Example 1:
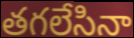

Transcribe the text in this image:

తగలేసినా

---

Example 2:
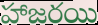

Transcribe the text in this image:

హాజరయి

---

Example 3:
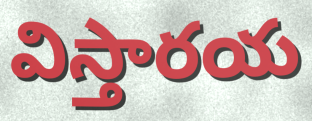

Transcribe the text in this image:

విస్తారయ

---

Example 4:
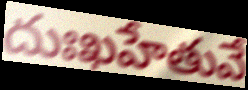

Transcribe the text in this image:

దుఃఖహేతువే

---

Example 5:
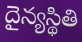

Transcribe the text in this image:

దైన్యస్థితి